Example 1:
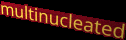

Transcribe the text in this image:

multinucleated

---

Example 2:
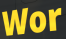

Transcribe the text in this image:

Wor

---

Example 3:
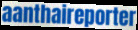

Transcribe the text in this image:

aanthaireporter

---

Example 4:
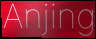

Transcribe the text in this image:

Anjing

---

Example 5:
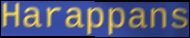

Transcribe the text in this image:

Harappans